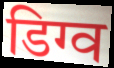
डिग्व